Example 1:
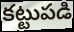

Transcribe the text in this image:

కట్టుపడి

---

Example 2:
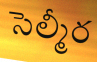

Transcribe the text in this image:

సెల్మీర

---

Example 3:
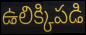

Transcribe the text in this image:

ఉలిక్కిపడి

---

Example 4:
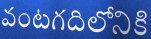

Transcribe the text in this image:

వంటగదిలోనికి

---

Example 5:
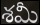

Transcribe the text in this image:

శమీ